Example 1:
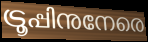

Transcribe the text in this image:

ട്രൂപ്പിനുനേരെ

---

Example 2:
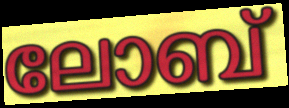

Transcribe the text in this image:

ലോബ്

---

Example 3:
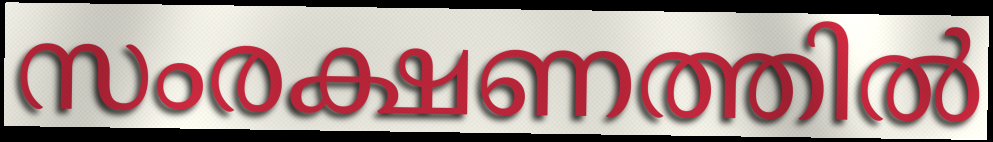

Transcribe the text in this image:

സംരക്ഷണത്തിൽ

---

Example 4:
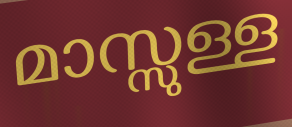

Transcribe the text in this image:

മാസ്സുള്ള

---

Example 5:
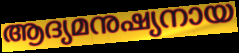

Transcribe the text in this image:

ആദ്യമനുഷ്യനായ